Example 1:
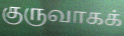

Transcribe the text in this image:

குருவாகக்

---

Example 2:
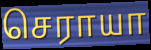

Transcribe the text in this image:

செராயா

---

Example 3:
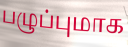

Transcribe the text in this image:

பழுப்புமாக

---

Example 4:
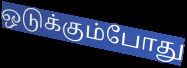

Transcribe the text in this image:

ஒடுக்கும்போது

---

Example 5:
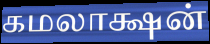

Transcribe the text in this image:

கமலாக்ஷன்